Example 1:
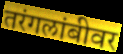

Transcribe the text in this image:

तरंगलांबीवर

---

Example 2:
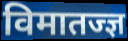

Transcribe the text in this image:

विमातज्ज्ञ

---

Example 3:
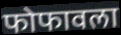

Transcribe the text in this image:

फोफावला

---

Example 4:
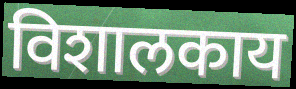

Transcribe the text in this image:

विशालकाय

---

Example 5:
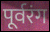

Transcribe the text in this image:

पूर्वरंग